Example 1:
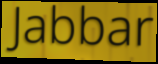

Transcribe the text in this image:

Jabbar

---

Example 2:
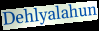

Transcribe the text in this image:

Dehlyalahun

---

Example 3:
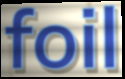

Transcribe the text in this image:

foil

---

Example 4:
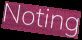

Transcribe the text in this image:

Noting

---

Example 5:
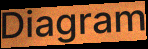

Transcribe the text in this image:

Diagram